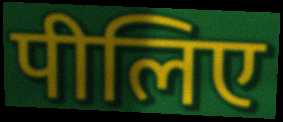
पीलिए